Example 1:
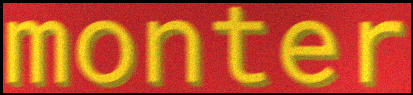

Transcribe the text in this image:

monter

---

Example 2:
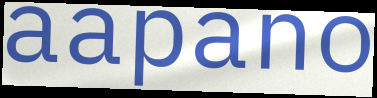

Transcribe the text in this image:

aapano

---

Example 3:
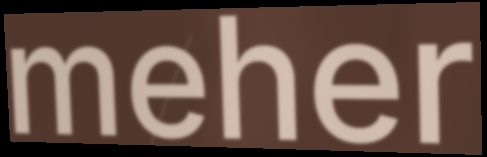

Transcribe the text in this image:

meher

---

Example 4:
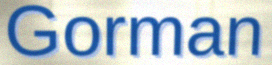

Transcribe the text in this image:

Gorman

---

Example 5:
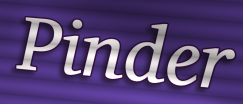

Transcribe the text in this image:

Pinder